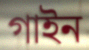
গাইন